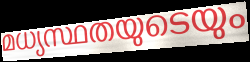
മധ്യസ്ഥതയുടെയും